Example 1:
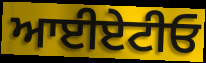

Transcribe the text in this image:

ਆਈਏਟੀਓ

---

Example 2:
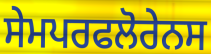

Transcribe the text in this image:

ਸੇਮਪਰਫਲੋਰੇਨਸ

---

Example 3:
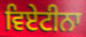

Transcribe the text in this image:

ਵਿਏਟੀਨਾ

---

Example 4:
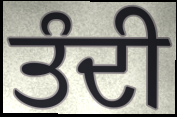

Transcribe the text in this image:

ਤੰਦੀ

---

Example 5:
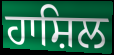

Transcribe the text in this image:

ਹਾਸ਼ਿਲ